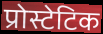
प्रोस्टेटिक